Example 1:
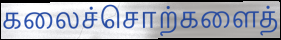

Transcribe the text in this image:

கலைச்சொற்களைத்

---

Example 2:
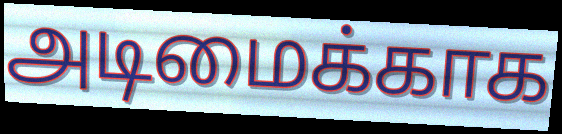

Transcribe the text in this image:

அடிமைக்காக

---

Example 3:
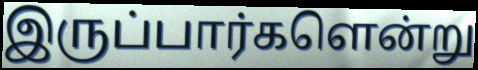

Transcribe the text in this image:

இருப்பார்களென்று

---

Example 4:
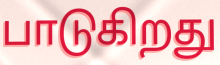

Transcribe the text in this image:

பாடுகிறது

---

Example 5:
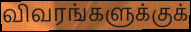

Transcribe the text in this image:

விவரங்களுக்குக்